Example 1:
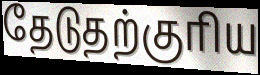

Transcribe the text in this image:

தேடுதற்குரிய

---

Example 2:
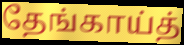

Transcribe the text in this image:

தேங்காய்த்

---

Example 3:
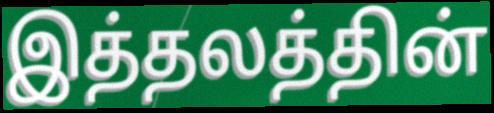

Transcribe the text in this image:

இத்தலத்தின்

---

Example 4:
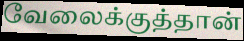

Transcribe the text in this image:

வேலைக்குத்தான்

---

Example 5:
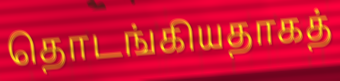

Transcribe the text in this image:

தொடங்கியதாகத்